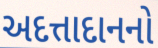
અદત્તાદાનનો